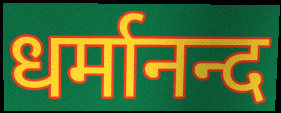
धर्मानन्द